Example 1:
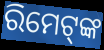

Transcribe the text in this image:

ରିମେଟ୍‍ଙ୍କ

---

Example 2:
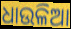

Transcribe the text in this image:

ଧାଉଳିଆ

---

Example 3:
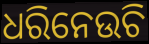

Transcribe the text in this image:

ଧରିନେଉଚି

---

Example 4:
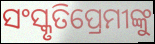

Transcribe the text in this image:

ସଂସ୍କୃତିପ୍ରେମୀଙ୍କୁ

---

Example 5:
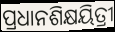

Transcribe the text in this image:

ପ୍ରଧାନଶିକ୍ଷୟିତ୍ରୀ